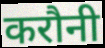
करौनी